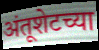
अंतूशेटच्या